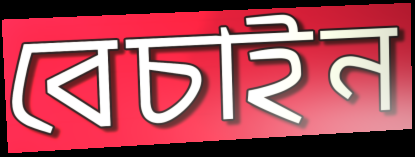
বেচাইন